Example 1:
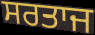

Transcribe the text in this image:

ਸਰਤਾਜ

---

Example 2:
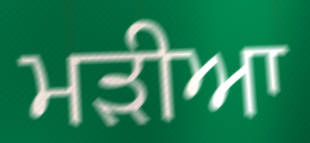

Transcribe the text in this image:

ਮੜੀਆ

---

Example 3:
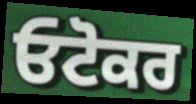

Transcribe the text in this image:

ਓਟੋਕਰ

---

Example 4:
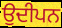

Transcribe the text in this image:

ਉਦੀਪਨ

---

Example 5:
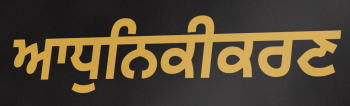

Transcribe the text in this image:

ਆਧੁਨਿਕੀਕਰਣ